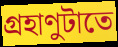
গ্রহাণুটাতে